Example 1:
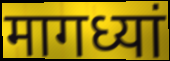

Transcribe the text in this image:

मागध्यां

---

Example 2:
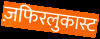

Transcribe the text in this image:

ज़फिरलुकास्ट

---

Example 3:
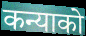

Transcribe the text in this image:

कन्याको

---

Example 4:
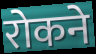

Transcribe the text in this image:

रोकने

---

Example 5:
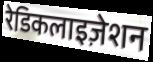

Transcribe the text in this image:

रेडिकलाइज़ेशन